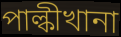
পাল্কীখানা